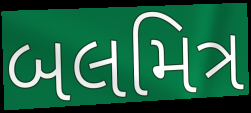
બલમિત્ર